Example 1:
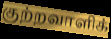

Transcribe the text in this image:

குற்றவாளிக்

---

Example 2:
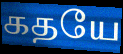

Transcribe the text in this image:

கதயே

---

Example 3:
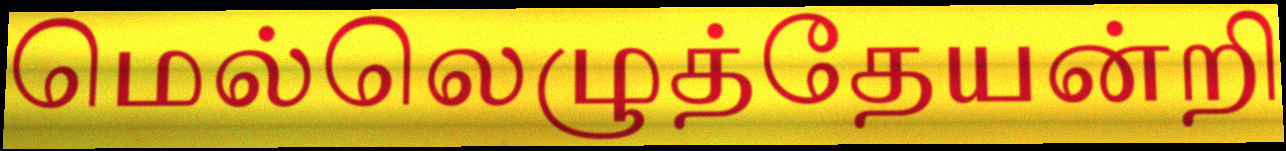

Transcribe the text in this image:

மெல்லெழுத்தேயன்றி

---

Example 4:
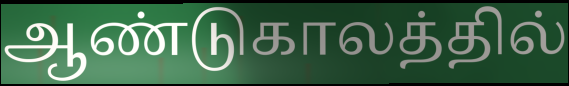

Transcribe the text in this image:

ஆண்டுகாலத்தில்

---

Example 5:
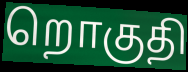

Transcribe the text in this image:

றொகுதி